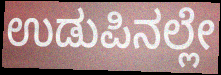
ಉಡುಪಿನಲ್ಲೇ